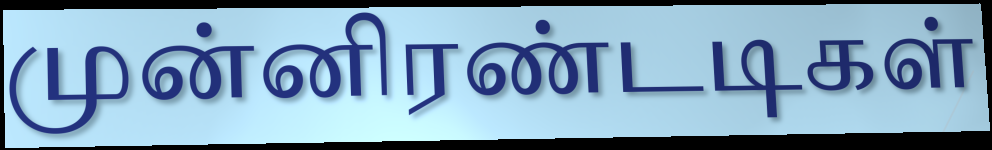
முன்னிரண்டடிகள்